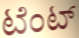
ಟೆಂಟ್